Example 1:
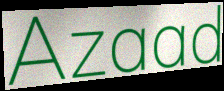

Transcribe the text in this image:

Azaad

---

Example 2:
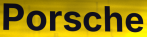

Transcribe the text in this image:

Porsche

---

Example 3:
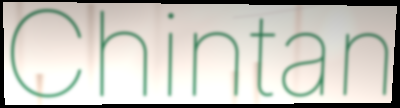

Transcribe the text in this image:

Chintan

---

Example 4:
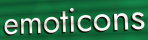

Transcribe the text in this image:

emoticons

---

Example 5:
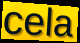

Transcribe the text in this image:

cela